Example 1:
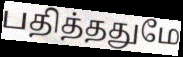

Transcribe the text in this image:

பதித்ததுமே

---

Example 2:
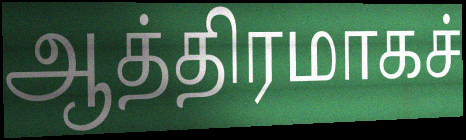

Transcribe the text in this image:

ஆத்திரமாகச்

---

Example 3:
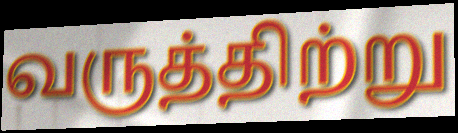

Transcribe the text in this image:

வருத்திற்று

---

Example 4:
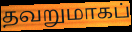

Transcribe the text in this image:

தவறுமாகப்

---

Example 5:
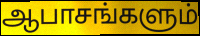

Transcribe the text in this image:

ஆபாசங்களும்